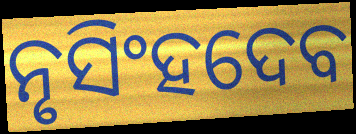
ନୃସିଂହଦେବ